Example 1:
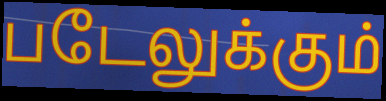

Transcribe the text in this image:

படேலுக்கும்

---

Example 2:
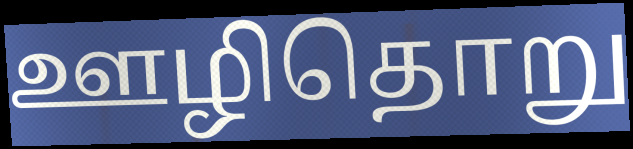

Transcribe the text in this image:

ஊழிதொறு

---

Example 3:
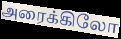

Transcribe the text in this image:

அரைக்கிலோ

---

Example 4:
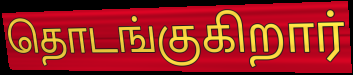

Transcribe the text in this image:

தொடங்குகிறார்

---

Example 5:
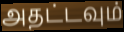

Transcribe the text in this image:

அதட்டவும்